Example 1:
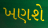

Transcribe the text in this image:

ખણશે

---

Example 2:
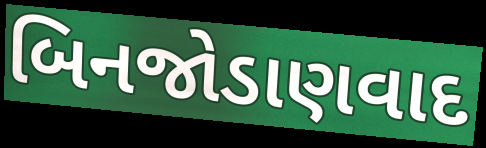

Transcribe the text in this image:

બિનજોડાણવાદ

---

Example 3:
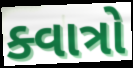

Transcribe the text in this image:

ક્વાત્રો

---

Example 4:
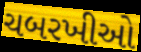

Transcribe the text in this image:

ચબરખીઓ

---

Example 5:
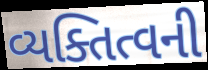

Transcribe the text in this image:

વ્યક્તિત્વની